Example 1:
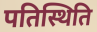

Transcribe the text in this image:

पतिस्थिति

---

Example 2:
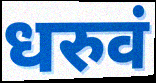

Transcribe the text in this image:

धरुवं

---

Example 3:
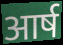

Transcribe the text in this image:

आर्ष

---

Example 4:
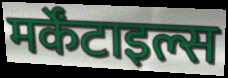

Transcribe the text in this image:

मर्केंटाइल्स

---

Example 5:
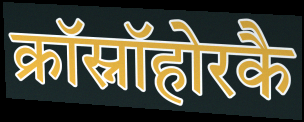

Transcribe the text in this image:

क्रॉस्नॉहोरकै